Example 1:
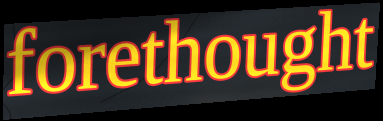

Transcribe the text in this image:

forethought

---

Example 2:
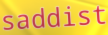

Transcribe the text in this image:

saddist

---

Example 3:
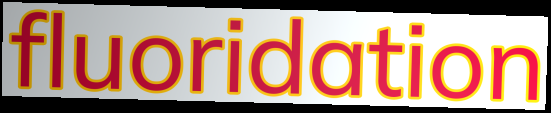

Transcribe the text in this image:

fluoridation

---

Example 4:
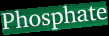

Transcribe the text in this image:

Phosphate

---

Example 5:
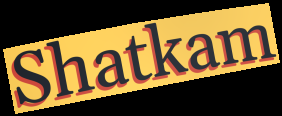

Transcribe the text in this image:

Shatkam